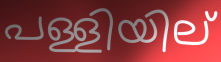
പള്ളിയില്